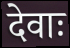
देवाः